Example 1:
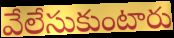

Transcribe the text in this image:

వేలేసుకుంటారు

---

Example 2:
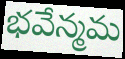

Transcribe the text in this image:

భవేన్మమ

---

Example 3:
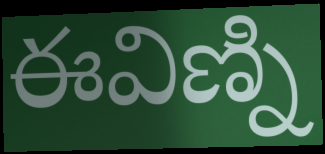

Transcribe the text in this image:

ఈవిణ్ని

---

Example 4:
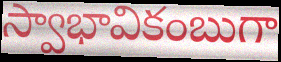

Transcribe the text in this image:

స్వాభావికంబుగా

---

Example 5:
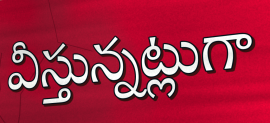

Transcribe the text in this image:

వీస్తున్నట్లుగా